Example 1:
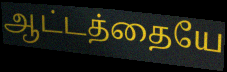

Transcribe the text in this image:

ஆட்டத்தையே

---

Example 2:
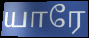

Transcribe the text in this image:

யாரே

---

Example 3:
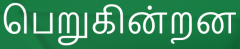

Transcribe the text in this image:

பெறுகின்றன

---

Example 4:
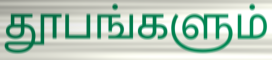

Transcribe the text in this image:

தூபங்களும்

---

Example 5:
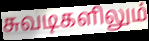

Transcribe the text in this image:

சுவடிகளிலும்